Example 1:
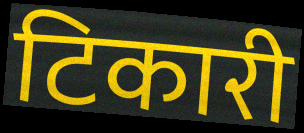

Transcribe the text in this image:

टिकारी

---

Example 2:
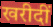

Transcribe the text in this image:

खरीदीं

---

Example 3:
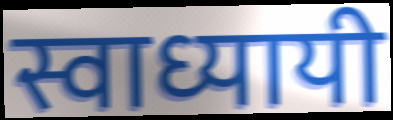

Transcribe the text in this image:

स्वाध्यायी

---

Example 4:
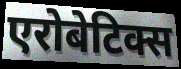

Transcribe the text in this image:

एरोबेटिक्स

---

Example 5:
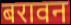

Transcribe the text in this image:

बरावन